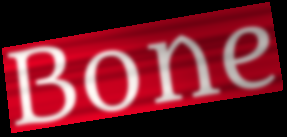
Bone